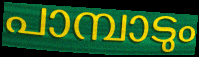
പാമ്പാടും